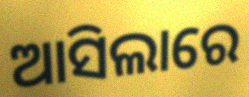
ଆସିଲାରେ